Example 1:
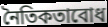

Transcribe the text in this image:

নৈতিকতাবোধ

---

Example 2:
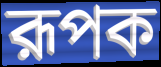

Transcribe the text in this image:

রূপক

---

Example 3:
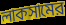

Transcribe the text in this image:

লাকসামের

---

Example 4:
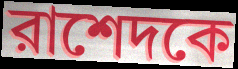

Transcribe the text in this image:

রাশেদকে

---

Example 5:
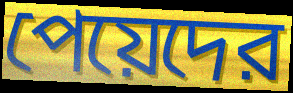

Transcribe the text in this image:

পেয়েদের